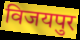
विजयपुर